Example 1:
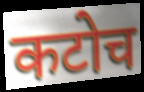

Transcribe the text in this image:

कटोच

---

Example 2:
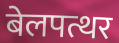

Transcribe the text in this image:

बेलपत्थर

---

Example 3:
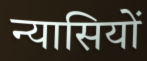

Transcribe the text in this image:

न्यासियों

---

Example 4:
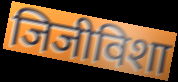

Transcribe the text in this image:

जिजीविशा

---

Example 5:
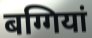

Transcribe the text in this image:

बग्गियां